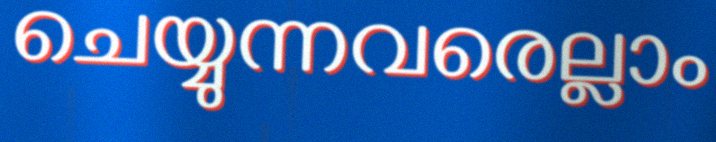
ചെയ്യുന്നവരെല്ലാം